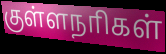
குள்ளநரிகள்